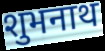
शुभनाथ